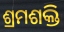
ଶ୍ରମଶକ୍ତି